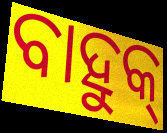
ବାହୁକ୍